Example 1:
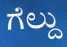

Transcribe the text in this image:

ಗೆಲ್ದು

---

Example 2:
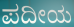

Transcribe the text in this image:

ಪದೀಯ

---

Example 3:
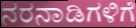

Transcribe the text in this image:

ನರನಾಡಿಗಳಿಗೆ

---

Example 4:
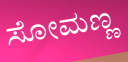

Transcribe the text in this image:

ಸೋಮಣ್ಣ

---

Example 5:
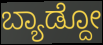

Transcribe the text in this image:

ಬ್ಯಾಡ್ದೋ